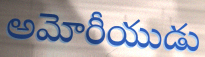
అమోరీయుడు